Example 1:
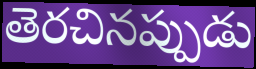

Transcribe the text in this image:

తెరచినప్పుడు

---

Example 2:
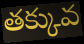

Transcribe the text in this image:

తక్కువ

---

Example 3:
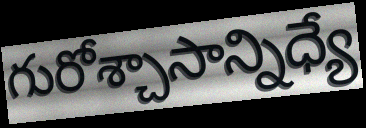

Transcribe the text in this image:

గురోశ్చాసాన్నిధ్యే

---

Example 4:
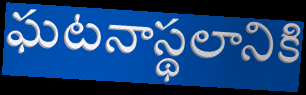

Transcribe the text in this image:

ఘటనాస్థలానికి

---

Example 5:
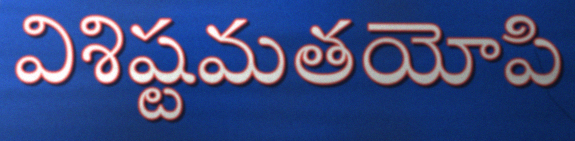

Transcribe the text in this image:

విశిష్టమతయోపి